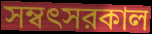
সম্বৎসরকাল